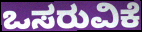
ಒಸರುವಿಕೆ